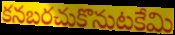
కనబరచుకొనుటకేమి